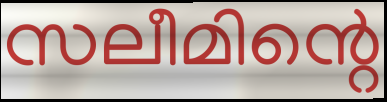
സലീമിന്റെ